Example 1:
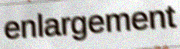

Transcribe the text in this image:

enlargement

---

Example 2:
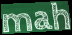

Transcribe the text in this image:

mah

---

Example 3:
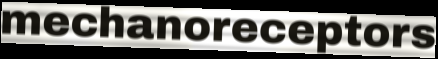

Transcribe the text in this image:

mechanoreceptors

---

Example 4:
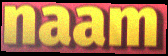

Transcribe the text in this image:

naam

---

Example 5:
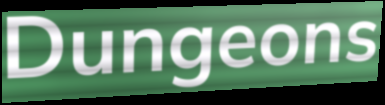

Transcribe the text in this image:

Dungeons